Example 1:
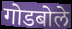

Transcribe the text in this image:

गोडबोले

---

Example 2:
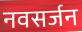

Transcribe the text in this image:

नवसर्जन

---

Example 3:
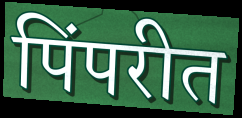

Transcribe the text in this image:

पिंपरीत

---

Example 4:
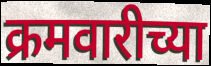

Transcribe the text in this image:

क्रमवारीच्या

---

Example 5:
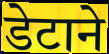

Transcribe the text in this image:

डेटाने